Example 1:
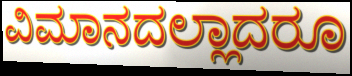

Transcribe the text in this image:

ವಿಮಾನದಲ್ಲಾದರೂ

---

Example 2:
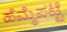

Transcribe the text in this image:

ಹೆಮ್ಮೆಪಟ್ಟೆ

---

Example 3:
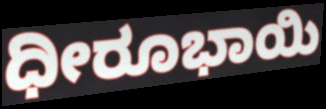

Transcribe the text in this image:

ಧೀರೂಭಾಯಿ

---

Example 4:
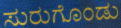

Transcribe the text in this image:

ಸುರುಗೊಂಡು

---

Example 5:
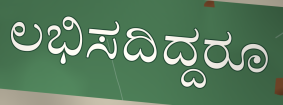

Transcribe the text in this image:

ಲಭಿಸದಿದ್ದರೂ